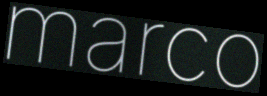
marco